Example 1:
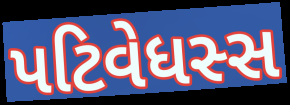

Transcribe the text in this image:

પટિવેધસ્સ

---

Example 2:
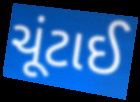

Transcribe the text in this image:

ચૂંટાઈ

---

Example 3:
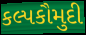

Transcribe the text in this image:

કલ્પકૌમુદી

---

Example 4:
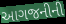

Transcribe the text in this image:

આગજનીની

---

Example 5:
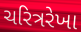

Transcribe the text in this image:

ચરિત્રરેખા